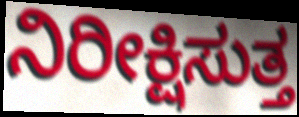
ನಿರೀಕ್ಷಿಸುತ್ತ